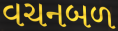
વચનબળ